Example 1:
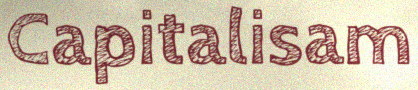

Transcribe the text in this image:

Capitalisam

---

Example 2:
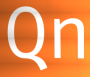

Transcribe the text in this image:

Qn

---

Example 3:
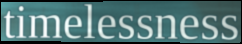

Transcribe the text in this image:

timelessness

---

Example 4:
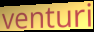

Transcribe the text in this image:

venturi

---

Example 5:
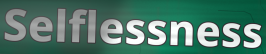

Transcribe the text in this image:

Selflessness